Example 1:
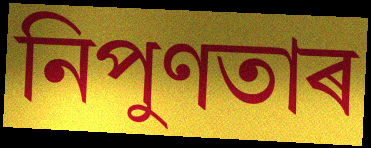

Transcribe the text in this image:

নিপুণতাৰ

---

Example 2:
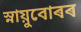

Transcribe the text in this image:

স্নায়ুবোৰৰ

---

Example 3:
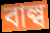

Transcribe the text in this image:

বাল্ব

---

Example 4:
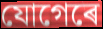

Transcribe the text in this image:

যোগেৰে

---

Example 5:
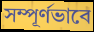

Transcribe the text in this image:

সম্পূৰ্ণভাবে